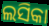
ଲସିକା